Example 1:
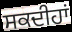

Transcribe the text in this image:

ਸਕਦੀਹਾਂ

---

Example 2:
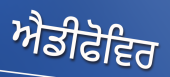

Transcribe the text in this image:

ਐਡੀਫੋਵਿਰ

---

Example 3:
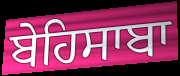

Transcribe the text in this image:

ਬੇਹਿਸਾਬਾ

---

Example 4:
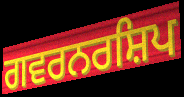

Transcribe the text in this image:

ਗਵਰਨਰਸ਼ਿਪ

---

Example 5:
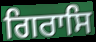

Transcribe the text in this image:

ਗਿਰਾਸਿ